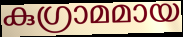
കുഗ്രാമമായ